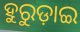
ହୁରୁଡ଼ାଇ